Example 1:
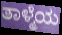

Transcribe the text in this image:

ತಾಳ್ಮೆಯ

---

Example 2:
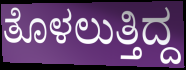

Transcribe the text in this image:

ತೊಳಲುತ್ತಿದ್ದ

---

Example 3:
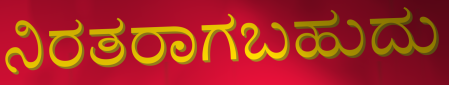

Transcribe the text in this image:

ನಿರತರಾಗಬಹುದು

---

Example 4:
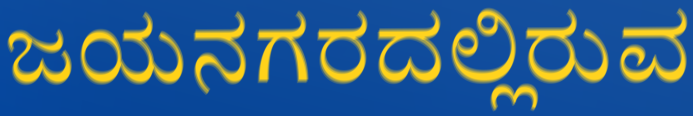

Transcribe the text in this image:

ಜಯನಗರದಲ್ಲಿರುವ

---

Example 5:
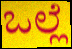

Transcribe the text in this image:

ಒಲ್ಲೆ